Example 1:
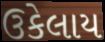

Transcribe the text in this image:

ઉકેલાય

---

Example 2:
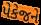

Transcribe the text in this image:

પેકેજને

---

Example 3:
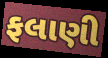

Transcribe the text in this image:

ફલાણી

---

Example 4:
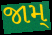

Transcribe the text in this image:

જામ્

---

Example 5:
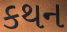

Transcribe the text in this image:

કથન